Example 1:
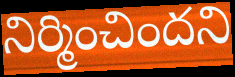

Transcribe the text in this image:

నిర్మించిందని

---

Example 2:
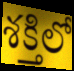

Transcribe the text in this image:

శక్తిలో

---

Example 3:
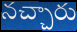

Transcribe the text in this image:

నచ్చారు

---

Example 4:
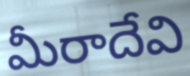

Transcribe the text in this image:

మీరాదేవి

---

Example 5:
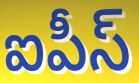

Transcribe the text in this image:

ఐపీస్